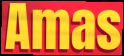
Amas